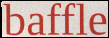
baffle